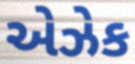
એઝેક